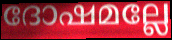
ദോഷമല്ലേ